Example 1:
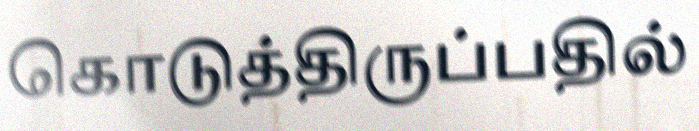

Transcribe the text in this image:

கொடுத்திருப்பதில்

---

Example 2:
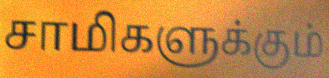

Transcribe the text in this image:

சாமிகளுக்கும்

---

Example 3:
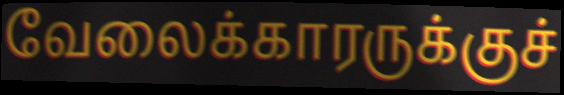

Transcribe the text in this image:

வேலைக்காரருக்குச்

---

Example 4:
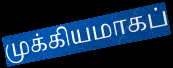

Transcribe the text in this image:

முக்கியமாகப்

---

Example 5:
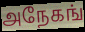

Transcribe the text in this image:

அநேகங்